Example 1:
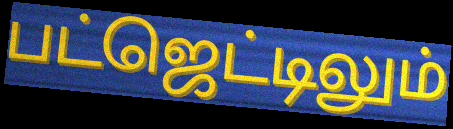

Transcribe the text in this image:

பட்ஜெட்டிலும்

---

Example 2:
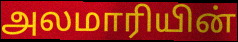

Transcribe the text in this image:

அலமாரியின்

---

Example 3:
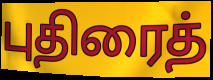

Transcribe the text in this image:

புதிரைத்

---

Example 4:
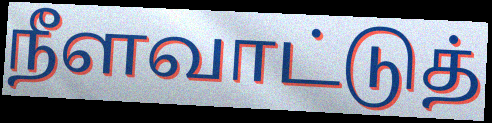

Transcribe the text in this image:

நீளவாட்டுத்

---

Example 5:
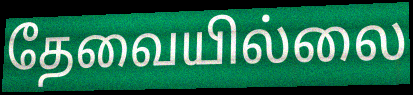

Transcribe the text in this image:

தேவையில்லை